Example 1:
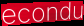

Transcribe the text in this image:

econdu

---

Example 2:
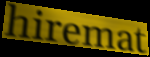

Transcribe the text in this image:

hiremat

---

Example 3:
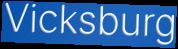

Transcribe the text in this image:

Vicksburg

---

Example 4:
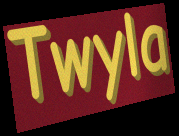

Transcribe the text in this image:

Twyla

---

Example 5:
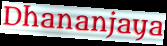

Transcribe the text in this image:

Dhananjaya